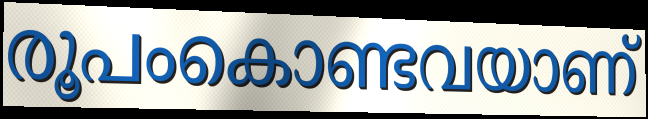
രൂപംകൊണ്ടവയാണ്